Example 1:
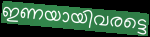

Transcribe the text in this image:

ഇണയായിവരട്ടെ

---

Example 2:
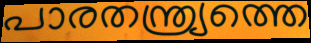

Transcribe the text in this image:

പാരതന്ത്ര്യത്തെ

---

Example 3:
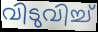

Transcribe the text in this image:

വിടുവിച്ച്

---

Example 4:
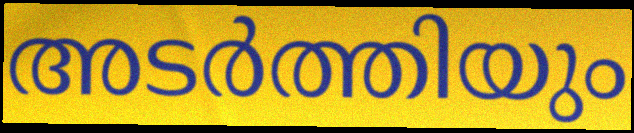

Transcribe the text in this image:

അടർത്തിയും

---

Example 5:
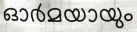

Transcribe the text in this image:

ഓർമയായും